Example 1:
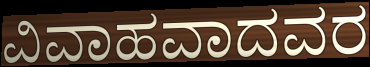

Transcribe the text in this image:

ವಿವಾಹವಾದವರ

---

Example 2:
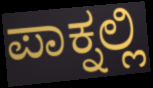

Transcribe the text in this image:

ಪಾಕ್ನಲ್ಲಿ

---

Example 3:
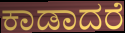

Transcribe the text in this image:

ಕಾಡಾದರೆ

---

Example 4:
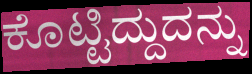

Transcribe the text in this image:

ಕೊಟ್ಟಿದ್ದುದನ್ನು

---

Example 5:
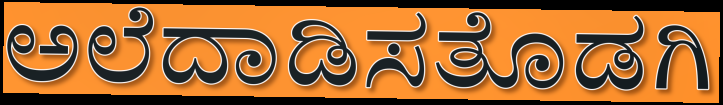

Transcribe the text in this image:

ಅಲೆದಾಡಿಸತೊಡಗಿ